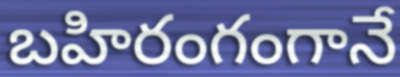
బహిరంగంగానే